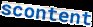
scontent